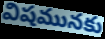
విషమునకు